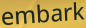
embark